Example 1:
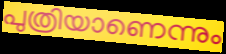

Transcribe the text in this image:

പുത്രിയാണെന്നും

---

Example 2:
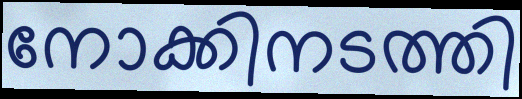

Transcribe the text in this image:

നോക്കിനടത്തി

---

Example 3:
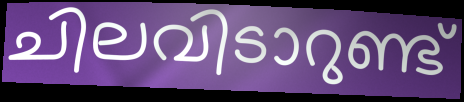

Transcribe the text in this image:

ചിലവിടാറുണ്ട്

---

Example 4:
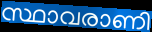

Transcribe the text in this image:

സ്ഥാവരാണി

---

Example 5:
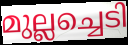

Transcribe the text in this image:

മുല്ലച്ചെടി